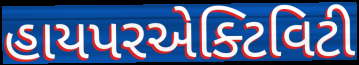
હાયપરએક્ટિવિટી